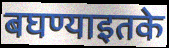
बघण्याइतके